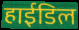
हाईडिल